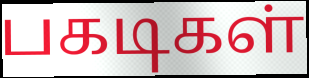
பகடிகள்